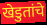
खेडुतांचे